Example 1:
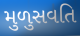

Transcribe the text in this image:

મુળુસવતિ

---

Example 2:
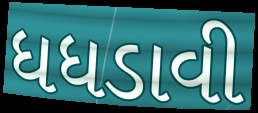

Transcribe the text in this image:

ધધડાવી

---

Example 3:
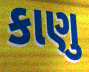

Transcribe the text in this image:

કાણુ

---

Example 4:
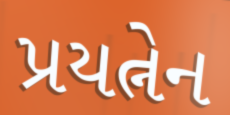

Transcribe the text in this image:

પ્રયત્નેન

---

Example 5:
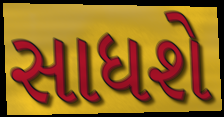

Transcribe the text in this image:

સાધશે